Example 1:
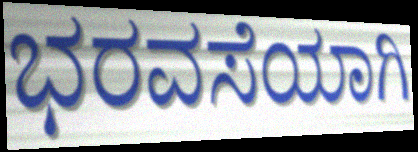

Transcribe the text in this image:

ಭರವಸೆಯಾಗಿ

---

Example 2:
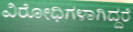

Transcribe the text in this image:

ವಿರೋಧಿಗಳಾಗಿದ್ದರೆ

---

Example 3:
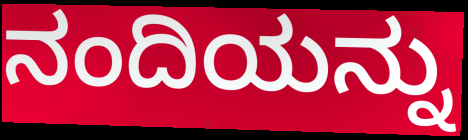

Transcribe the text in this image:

ನಂದಿಯನ್ನು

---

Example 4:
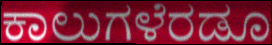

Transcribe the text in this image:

ಕಾಲುಗಳೆರಡೂ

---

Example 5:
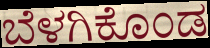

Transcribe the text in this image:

ಬೆಳಗಿಕೊಂಡ